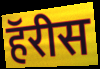
हॅरीस